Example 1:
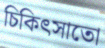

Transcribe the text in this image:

চিকিৎসাতো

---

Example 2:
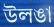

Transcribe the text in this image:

উলঙা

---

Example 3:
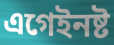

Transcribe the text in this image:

এগেইনষ্ট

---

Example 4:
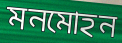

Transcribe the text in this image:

মনমোহন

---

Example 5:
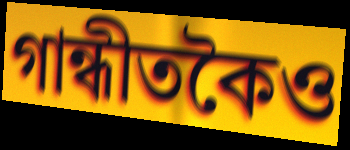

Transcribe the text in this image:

গান্ধীতকৈও